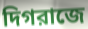
দিগরাজে